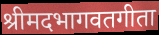
श्रीमदभागवतगीता